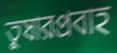
তুষারপ্রবাহ